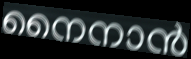
നൈനാൻ